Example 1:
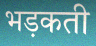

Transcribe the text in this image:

भड़कती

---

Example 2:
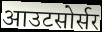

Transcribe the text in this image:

आउटसोर्सर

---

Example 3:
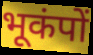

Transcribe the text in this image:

भूकंपों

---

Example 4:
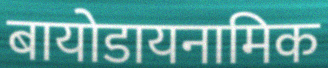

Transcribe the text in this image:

बायोडायनामिक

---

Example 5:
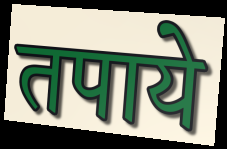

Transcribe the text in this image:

तपाये